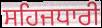
ਸਹਿਜਧਾਰੀ